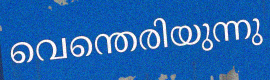
വെന്തെരിയുന്നു